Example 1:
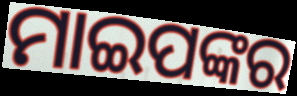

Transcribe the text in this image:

ମାଇପଙ୍କର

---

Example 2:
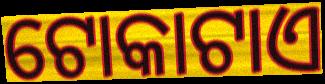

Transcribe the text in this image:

ଟୋକାଟାଏ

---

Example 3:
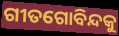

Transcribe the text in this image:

ଗୀତଗୋବିନ୍ଦକୁ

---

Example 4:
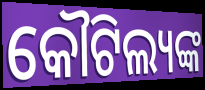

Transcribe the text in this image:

କୌଟିଲ୍ୟଙ୍କ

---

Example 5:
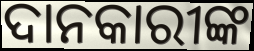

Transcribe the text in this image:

ଦାନକାରୀଙ୍କ